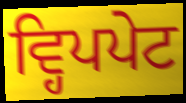
ਵ੍ਹਿਪਪੇਟ